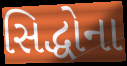
સિદ્ધોના